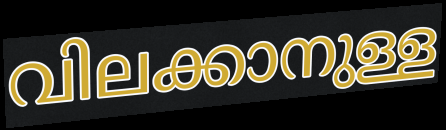
വിലക്കാനുള്ള